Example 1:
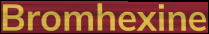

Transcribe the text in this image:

Bromhexine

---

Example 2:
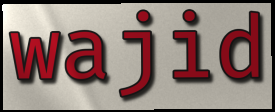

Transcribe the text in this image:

wajid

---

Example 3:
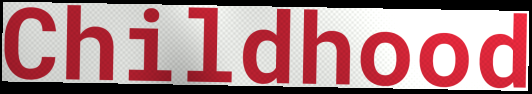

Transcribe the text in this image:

Childhood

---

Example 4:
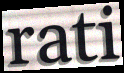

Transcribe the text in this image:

rati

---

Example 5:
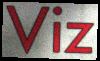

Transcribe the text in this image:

Viz